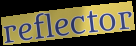
reflector